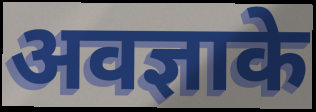
अवज्ञाके